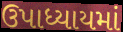
ઉપાધ્યાયમાં